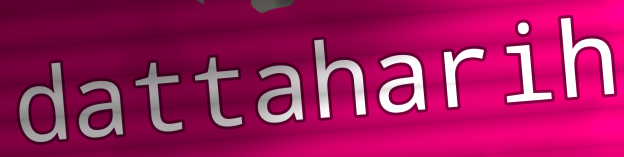
dattaharih